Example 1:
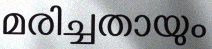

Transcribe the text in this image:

മരിച്ചതായും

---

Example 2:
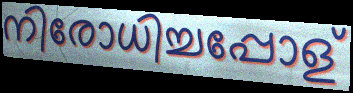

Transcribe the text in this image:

നിരോധിച്ചപ്പോള്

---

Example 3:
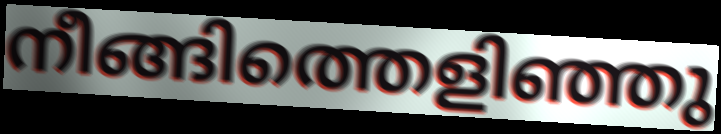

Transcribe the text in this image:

നീങ്ങിത്തെളിഞ്ഞു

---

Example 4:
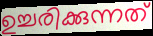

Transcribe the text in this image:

ഉച്ചരിക്കുന്നത്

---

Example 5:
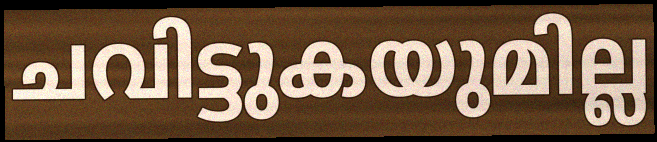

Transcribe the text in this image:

ചവിട്ടുകയുമില്ല